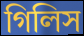
গিলিস